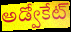
అడ్వోకేట్